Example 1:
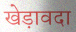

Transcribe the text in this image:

खेड़ावदा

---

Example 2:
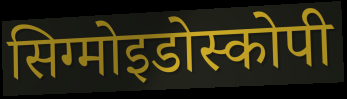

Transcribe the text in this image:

सिग्मोइडोस्कोपी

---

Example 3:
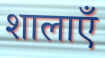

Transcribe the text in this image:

शालाएँ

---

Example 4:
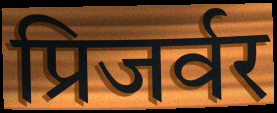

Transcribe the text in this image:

प्रिजर्वर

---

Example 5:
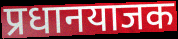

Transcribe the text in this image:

प्रधानयाजक